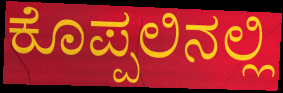
ಕೊಪ್ಪಲಿನಲ್ಲಿ